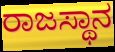
ರಾಜಸ್ಥಾನ